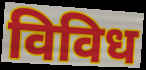
विविध